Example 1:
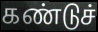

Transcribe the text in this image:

கண்டுச்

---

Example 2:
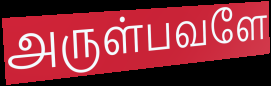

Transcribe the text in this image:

அருள்பவளே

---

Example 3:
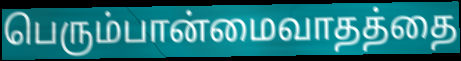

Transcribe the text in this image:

பெரும்பான்மைவாதத்தை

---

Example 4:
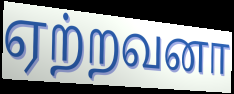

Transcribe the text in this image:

ஏற்றவனா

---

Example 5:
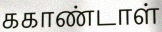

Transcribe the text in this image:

ககாண்டாள்